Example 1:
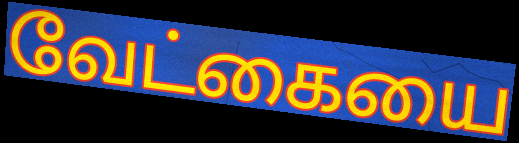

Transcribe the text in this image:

வேட்கையை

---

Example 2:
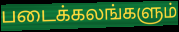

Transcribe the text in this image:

படைக்கலங்களும்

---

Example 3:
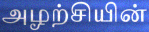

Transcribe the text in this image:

அழற்சியின்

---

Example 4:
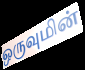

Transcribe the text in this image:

ஒருவுமின்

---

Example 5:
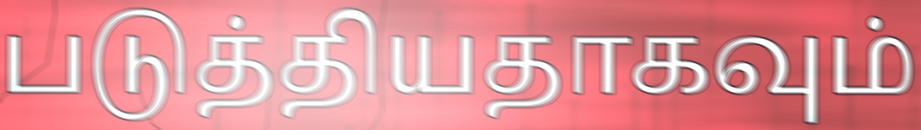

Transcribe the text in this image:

படுத்தியதாகவும்